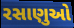
રસાણુઓ